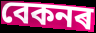
বেকনৰ